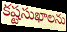
కష్టసుఖాలను